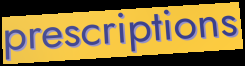
prescriptions